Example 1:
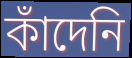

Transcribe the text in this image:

কাঁদেনি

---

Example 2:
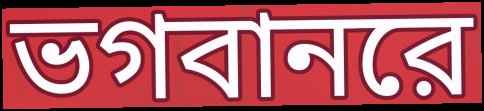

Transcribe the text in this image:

ভগবানরে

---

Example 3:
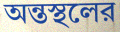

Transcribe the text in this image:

অন্তস্থলের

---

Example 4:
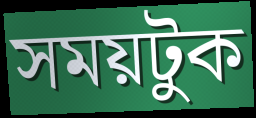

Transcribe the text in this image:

সময়টুক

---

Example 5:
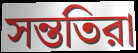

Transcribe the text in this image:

সন্ততিরা